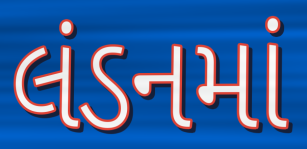
લંડનમાં